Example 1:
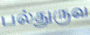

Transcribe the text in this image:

பல்துருவ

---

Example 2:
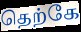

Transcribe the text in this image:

தெற்கே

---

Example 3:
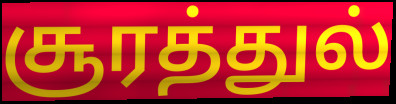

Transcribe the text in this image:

சூரத்துல்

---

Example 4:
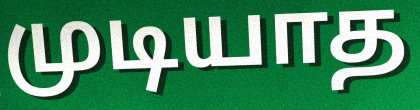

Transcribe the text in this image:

முடியாத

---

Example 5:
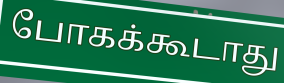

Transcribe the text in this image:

போகக்கூடாது